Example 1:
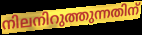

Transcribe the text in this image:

നിലനിറുത്തുന്നതിന്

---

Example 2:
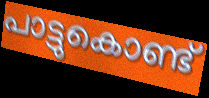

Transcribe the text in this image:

പാട്ടുകൊണ്ട്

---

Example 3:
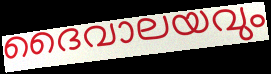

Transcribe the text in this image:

ദൈവാലയവും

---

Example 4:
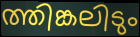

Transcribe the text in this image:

ത്തിങ്കലിടും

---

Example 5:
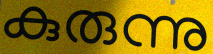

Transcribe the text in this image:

കുരുന്നു